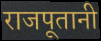
राजपूतानी